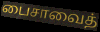
பைசாவைத்